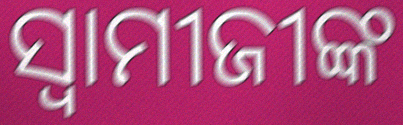
ସ୍ଵାମୀଜୀଙ୍କ